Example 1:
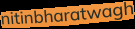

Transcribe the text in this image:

nitinbharatwagh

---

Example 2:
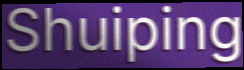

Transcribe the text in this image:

Shuiping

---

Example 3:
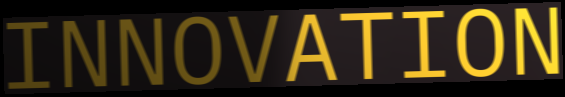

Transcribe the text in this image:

INNOVATION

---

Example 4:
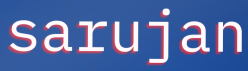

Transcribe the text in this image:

sarujan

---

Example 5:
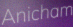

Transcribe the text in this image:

Anicham